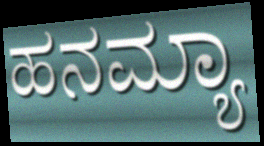
ಹನಮ್ಯಾ